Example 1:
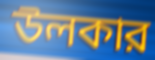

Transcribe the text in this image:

উলকার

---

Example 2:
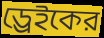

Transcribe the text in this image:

ড্রেইকের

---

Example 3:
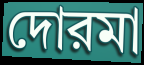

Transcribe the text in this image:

দোরমা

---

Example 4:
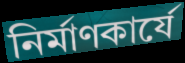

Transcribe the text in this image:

নির্মাণকার্যে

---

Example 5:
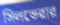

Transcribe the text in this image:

সিলভেরার